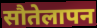
सौतेलापन